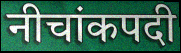
नीचांकपदी